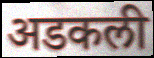
अडकली